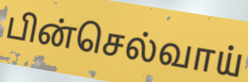
பின்செல்வாய்